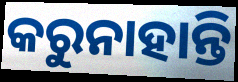
କରୁନାହାନ୍ତି